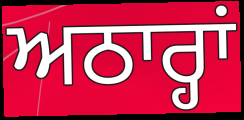
ਅਠਾਰ੍ਹਾਂ